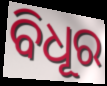
ବିଧୂର